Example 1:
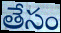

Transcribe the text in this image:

తేసం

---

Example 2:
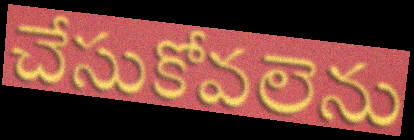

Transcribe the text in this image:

చేసుకోవలెను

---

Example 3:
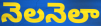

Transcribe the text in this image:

నెలనెలా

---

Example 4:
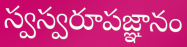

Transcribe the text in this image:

స్వస్వరూపజ్ఞానం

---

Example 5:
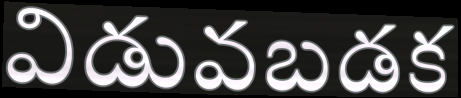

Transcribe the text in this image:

విడువబడక